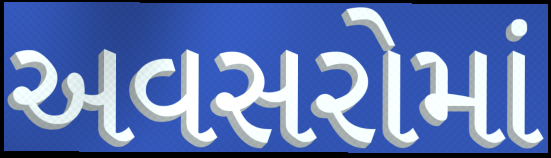
અવસરોમાં